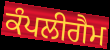
ਕੰਪਲੀਗੈਮ